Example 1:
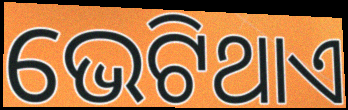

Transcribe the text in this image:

ଭେଟିଥାଏ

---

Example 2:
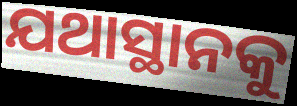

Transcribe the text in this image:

ଯଥାସ୍ଥାନକୁ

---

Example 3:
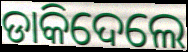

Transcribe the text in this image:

ଡାକିଦେଲେ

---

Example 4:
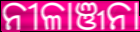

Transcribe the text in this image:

ନୀଳାଞ୍ଜନା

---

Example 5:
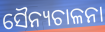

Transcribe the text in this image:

ସୈନ୍ୟଚାଳନା